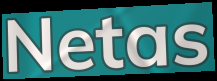
Netas